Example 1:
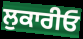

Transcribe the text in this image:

ਲੁਕਾਰੀਓ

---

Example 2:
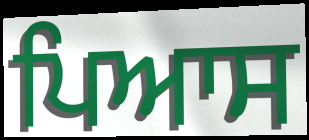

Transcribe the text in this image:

ਪਿਆਸ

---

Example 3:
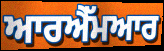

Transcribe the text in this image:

ਆਰਐੱਮਆਰ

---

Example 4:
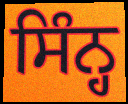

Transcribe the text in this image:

ਸਿੰਨ੍ਹ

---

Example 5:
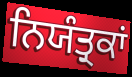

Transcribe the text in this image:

ਨਿਯੰਤ੍ਰਕਾਂ